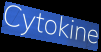
Cytokine